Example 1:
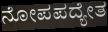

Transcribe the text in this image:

ನೋಪಪದ್ಯೇತ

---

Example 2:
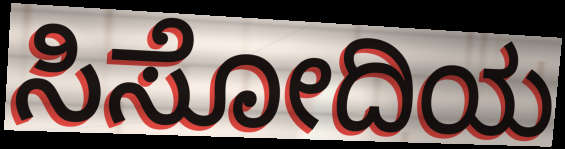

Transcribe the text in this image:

ಸಿಸೋದಿಯ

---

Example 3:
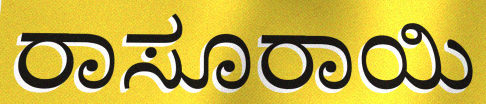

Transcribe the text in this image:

ರಾಸೂರಾಯಿ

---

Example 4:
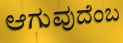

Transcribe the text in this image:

ಆಗುವುದೆಂಬ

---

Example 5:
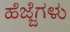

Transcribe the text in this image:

ಹೆಜ್ಜೆಗಳು